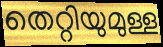
തെറ്റിയുമുള്ള